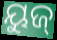
ୟୁଜ୍